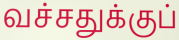
வச்சதுக்குப்